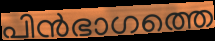
പിൻഭാഗത്തെ